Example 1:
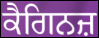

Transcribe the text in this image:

ਕੈਗਿਨਜ਼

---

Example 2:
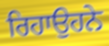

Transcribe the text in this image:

ਰਿਹਾਉਹਨੇ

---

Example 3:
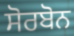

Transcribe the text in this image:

ਸੋਰਬੋਨ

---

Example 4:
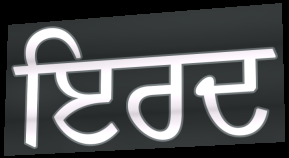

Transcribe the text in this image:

ਇਰਦ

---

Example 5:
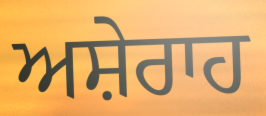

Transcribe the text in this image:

ਅਸ਼ੇਰਾਹ